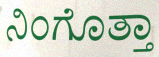
ನಿಂಗೊತ್ತಾ